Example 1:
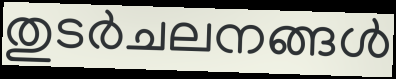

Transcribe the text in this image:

തുടർചലനങ്ങൾ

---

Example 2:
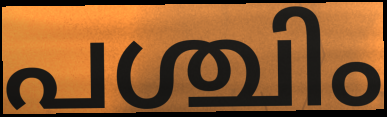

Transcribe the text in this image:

പശ്ചിം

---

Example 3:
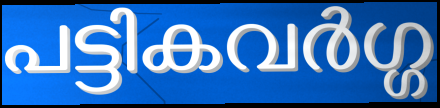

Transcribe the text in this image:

പട്ടികവർഗ്ഗ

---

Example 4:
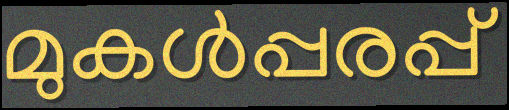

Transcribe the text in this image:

മുകൾപ്പരപ്പ്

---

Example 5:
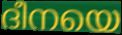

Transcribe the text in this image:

ദീനയെ